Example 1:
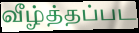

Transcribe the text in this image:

வீழ்த்தப்பட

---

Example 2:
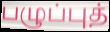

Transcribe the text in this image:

பழுப்புத்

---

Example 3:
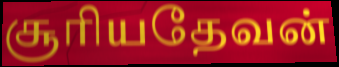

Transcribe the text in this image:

சூரியதேவன்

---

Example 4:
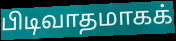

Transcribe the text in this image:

பிடிவாதமாகக்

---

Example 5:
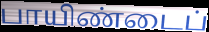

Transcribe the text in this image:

பாயிண்டைப்